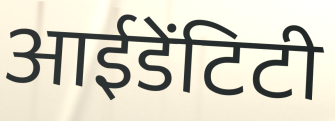
आईडेंटिटी